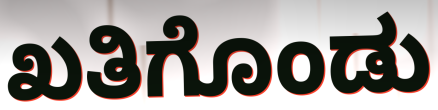
ಖತಿಗೊಂಡು